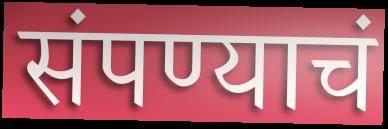
संपण्याचं